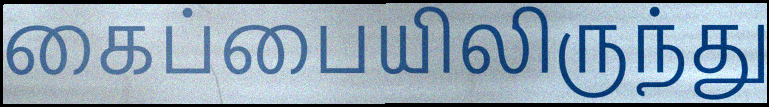
கைப்பையிலிருந்து